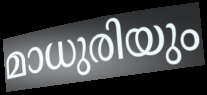
മാധുരിയും